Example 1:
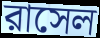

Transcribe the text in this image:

রাসেল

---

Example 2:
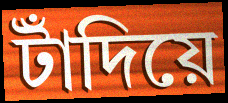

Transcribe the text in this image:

টাঁদিয়ে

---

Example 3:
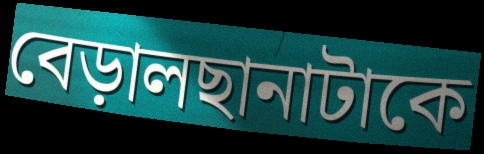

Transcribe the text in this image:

বেড়ালছানাটাকে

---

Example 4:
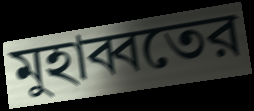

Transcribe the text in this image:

মুহাব্বতের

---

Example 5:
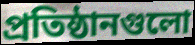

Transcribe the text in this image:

প্রতিষ্ঠানগুলো